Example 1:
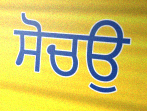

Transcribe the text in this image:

ਸੋਚਉ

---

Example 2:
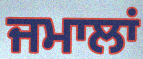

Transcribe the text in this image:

ਜਮਾਲਾਂ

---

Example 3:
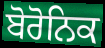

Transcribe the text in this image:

ਬੋਰੋਨਿਕ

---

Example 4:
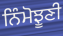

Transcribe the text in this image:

ਨਿੰਮੋਝੂਣੀ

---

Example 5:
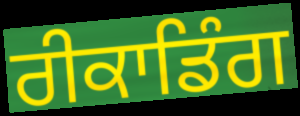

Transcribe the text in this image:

ਰੀਕਾਡਿੰਗ